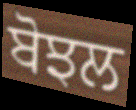
ਬੋਝਲ